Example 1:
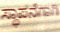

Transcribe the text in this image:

ಸ್ಥಾಪನೆಗಾಗಿ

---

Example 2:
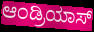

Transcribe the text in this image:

ಆಂಡ್ರಿಯಾಸ್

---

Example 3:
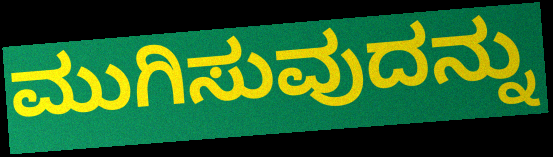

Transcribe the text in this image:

ಮುಗಿಸುವುದನ್ನು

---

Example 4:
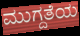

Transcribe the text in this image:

ಮುಗ್ದತೆಯ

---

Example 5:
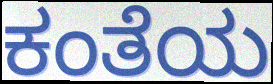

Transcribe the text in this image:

ಕಂತೆಯ